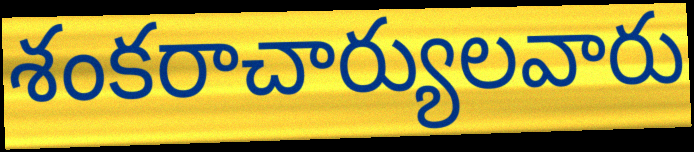
శంకరాచార్యులవారు